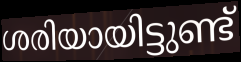
ശരിയായിട്ടുണ്ട്